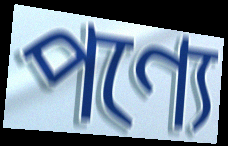
পণ্যে